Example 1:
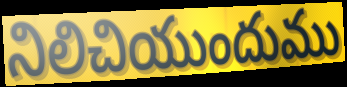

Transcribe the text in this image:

నిలిచియుందుము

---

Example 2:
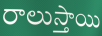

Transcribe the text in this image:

రాలుస్తాయి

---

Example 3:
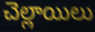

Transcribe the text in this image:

చెల్లాయిలు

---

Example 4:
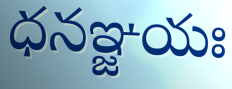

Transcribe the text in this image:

ధనఞ్జయః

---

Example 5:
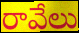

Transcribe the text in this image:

రావేలు